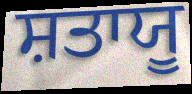
ਸ਼ਤਾਯੂ